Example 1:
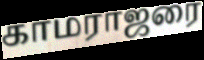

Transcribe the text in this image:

காமராஜரை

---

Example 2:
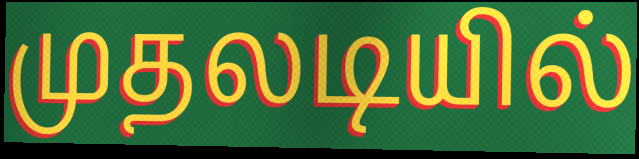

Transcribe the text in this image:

முதலடியில்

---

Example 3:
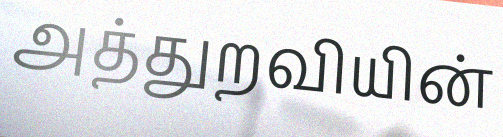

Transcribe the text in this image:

அத்துறவியின்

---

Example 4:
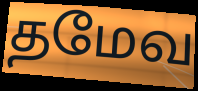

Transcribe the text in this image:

தமேவ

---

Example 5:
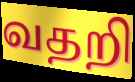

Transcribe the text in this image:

வதறி